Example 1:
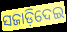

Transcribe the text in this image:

ସଜାଡ଼ିଦେଇ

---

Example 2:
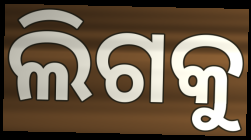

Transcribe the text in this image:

ଲିଗକୁ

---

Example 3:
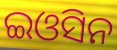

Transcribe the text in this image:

ଇଓସିନ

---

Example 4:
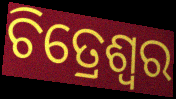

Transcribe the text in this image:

ଚିତ୍ରେଶ୍ୱର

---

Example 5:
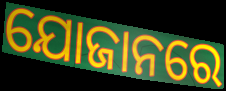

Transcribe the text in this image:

ଯୋଜାନରେ